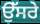
ਉੱਸਰੇ